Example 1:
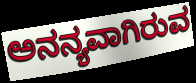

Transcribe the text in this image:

ಅನನ್ಯವಾಗಿರುವ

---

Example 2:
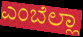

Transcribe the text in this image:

ಎಂಬೆಲ್ಲಾ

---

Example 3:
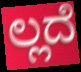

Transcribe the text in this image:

ಲ್ಲದೆ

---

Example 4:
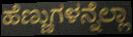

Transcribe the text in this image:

ಹೆಣ್ಣುಗಳನ್ನೆಲ್ಲಾ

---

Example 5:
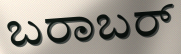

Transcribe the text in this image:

ಬರಾಬರ್